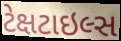
ટેક્ષટાઇલ્સ